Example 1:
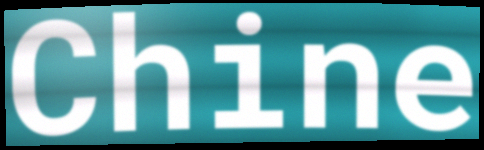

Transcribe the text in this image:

Chine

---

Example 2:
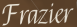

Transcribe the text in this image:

Frazier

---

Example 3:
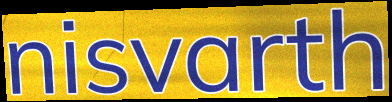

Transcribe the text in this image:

nisvarth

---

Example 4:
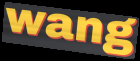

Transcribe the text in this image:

wang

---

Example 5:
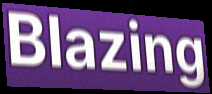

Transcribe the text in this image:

Blazing